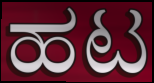
ಹಟ